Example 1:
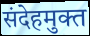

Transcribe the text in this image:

संदेहमुक्त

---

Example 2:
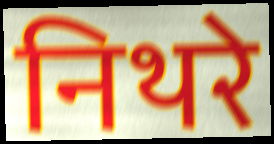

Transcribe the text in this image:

निथरे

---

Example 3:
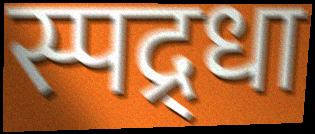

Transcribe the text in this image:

स्पद्र्धा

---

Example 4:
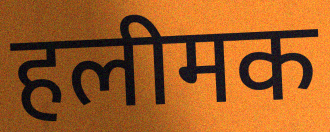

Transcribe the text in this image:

हलीमक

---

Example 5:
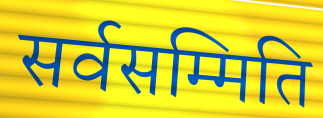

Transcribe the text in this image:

सर्वसम्मिति